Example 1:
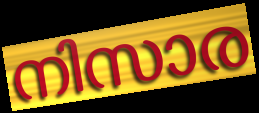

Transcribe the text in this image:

നിസാര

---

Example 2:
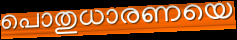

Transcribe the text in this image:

പൊതുധാരണയെ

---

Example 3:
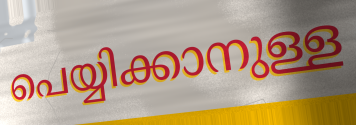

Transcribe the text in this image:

പെയ്യിക്കാനുള്ള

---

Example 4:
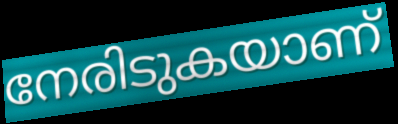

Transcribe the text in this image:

നേരിടുകയാണ്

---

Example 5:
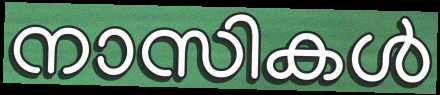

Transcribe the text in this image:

നാസികൾ